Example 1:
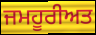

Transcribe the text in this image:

ਜਮਹੂਰੀਅਤ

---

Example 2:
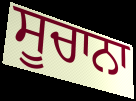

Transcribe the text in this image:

ਸੂਚਾਨਾ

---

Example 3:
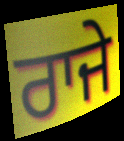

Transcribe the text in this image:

ਰਾਜੇ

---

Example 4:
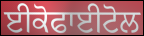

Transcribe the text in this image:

ਈਕੋਫਾਈਟੋਲ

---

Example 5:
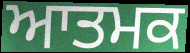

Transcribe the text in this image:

ਆਤਮਕ